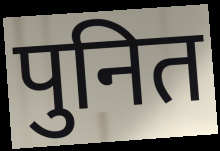
पुनित